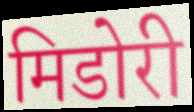
मिडोरी